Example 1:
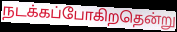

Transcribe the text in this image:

நடக்கப்போகிறதென்று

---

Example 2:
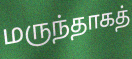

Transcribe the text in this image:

மருந்தாகத்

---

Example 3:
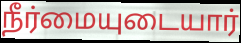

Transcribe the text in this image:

நீர்மையுடையார்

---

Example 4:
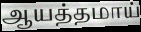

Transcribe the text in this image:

ஆயத்தமாய்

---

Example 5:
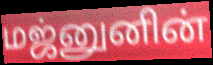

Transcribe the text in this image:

மஜ்னுனின்